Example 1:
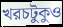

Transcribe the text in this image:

খরচটুকুও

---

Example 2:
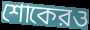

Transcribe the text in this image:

শোকেরও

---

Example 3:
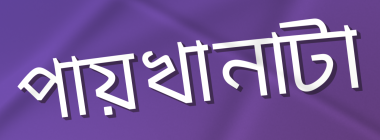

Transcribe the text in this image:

পায়খানাটা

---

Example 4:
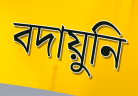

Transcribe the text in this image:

বদায়ুনি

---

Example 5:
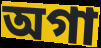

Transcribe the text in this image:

অগা